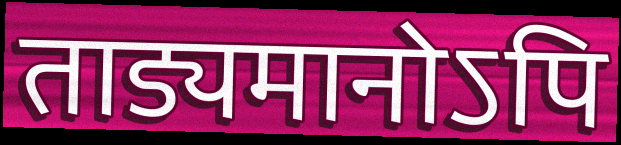
ताड्यमानोऽपि